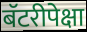
बॅटरीपेक्षा